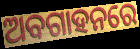
ଅବଗାହନରେ